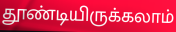
தூண்டியிருக்கலாம்